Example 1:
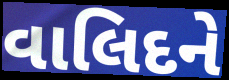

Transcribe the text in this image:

વાલિદને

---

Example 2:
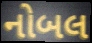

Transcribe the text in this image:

નોબલ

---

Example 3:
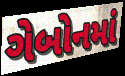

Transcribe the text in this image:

ગેબોનમાં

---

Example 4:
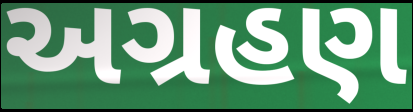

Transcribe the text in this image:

અગ્રહણ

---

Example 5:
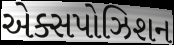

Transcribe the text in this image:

એક્સપોઝિશન